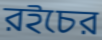
রইচের